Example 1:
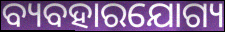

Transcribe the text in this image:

ବ୍ୟବହାରଯୋଗ୍ୟ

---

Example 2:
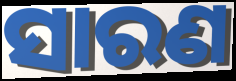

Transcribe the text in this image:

ସାରଣ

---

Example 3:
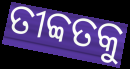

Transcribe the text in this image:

ତୀବ୍ବତକୁ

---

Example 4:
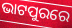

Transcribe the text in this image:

ଭାଟପୁରରେ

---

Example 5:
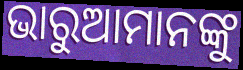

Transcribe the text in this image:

ଭାରୁଆମାନଙ୍କୁ